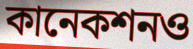
কানেকশনও